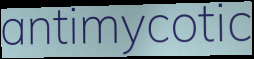
antimycotic